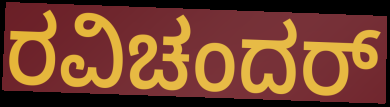
ರವಿಚಂದರ್